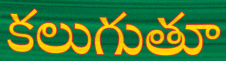
కలుగుతూ